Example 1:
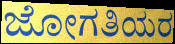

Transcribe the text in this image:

ಜೋಗತಿಯರ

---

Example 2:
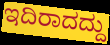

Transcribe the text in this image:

ಇದಿರಾದದ್ದು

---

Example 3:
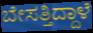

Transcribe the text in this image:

ಬೇಸತ್ತಿದ್ದಾಳೆ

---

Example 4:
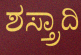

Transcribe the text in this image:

ಶಸ್ತ್ರಾದಿ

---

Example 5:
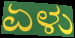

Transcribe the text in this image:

ಏಳು